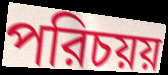
পরিচয়য়